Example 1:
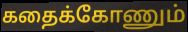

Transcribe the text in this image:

கதைக்கோணும்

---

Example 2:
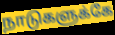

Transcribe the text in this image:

நாடுகளுக்கே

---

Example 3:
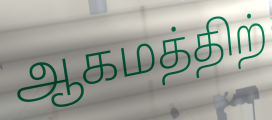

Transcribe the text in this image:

ஆகமத்திற்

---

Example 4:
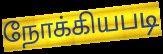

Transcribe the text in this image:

நோக்கியபடி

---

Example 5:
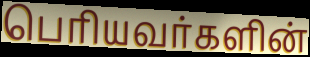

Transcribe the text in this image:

பெரியவர்களின்